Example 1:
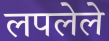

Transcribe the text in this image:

लपलेले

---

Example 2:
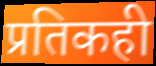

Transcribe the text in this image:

प्रतिकही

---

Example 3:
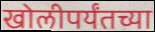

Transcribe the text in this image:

खोलीपर्यंतच्या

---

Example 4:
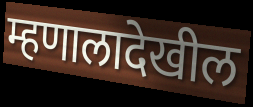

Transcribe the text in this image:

म्हणालादेखील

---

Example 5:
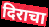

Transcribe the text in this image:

दिराचा